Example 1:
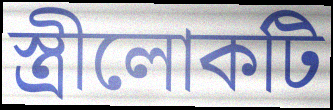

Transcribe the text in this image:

স্ত্রীলোকটি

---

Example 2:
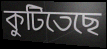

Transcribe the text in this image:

কুটিতেছে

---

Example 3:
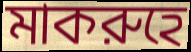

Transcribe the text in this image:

মাকরুহে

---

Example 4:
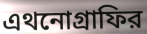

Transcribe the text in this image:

এথনোগ্রাফির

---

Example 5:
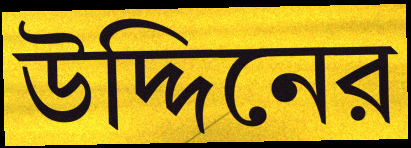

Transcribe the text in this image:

উদ্দিনের